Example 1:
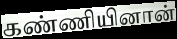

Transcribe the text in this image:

கண்ணியினான்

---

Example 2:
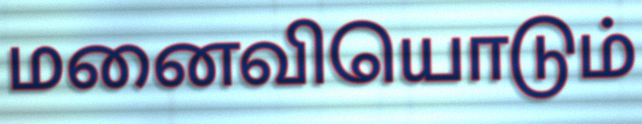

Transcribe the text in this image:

மனைவியொடும்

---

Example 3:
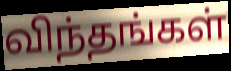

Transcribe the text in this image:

விந்தங்கள்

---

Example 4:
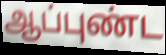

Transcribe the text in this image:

ஆப்புண்ட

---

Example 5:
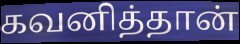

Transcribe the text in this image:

கவனித்தான்